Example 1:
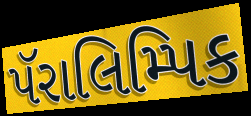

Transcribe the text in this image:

પૅરાલિમ્પિક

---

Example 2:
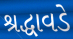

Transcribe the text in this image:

શ્રદ્ધાવડે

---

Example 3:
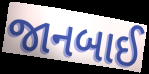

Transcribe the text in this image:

જાનબાઈ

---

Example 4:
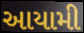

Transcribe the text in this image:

આયામી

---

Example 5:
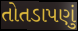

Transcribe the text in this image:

તોતડાપણું